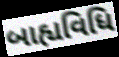
બાહ્યવિધિ